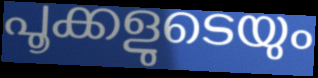
പൂക്കളുടെയും